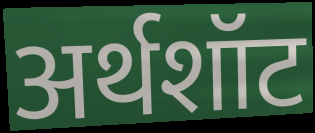
अर्थशॉट